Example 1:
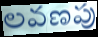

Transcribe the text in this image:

లవణపు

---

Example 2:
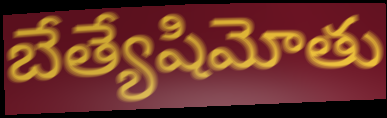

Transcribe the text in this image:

బేత్యేషిమోతు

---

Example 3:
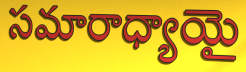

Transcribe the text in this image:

సమారాధ్యాయై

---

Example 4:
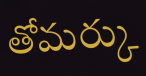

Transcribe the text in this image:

తోమర్కు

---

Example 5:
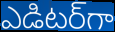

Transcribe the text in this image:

ఎడిటర్‌గా